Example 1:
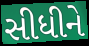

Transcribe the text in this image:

સીધીને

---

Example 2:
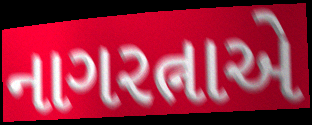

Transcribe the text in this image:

નાગરત્નાએ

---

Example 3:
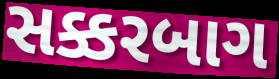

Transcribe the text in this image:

સક્કરબાગ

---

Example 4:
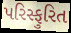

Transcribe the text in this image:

પરિસ્ફુરિત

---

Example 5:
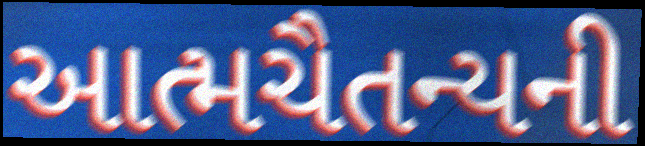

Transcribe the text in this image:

આત્મચૈતન્યની